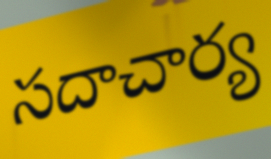
సదాచార్య